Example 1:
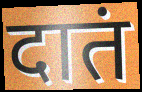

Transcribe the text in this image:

दातं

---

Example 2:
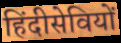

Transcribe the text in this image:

हिंदीसेवियों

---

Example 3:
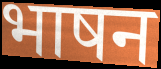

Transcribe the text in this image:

भाषन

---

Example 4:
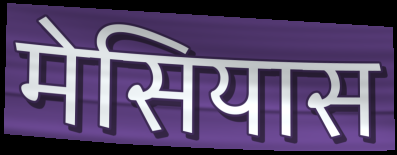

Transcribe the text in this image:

मेसियास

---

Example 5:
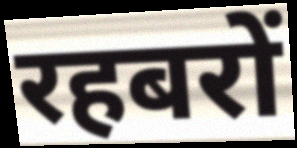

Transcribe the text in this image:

रहबरों